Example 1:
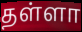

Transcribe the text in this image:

தள்ளா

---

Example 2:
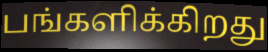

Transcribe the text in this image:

பங்களிக்கிறது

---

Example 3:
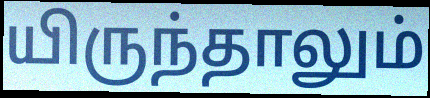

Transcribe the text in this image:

யிருந்தாலும்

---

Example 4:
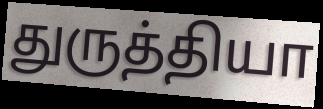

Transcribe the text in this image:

துருத்தியா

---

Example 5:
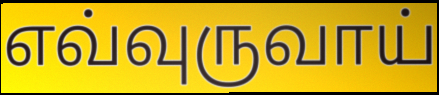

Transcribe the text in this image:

எவ்வுருவாய்